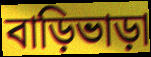
বাড়িভাড়া